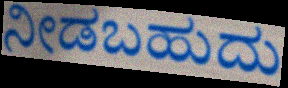
ನೀಡಬಹುದು